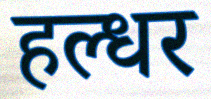
हल्धर